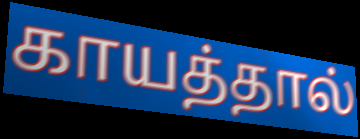
காயத்தால்